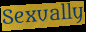
Sexually